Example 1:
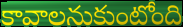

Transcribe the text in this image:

కావాలనుకుంటోంది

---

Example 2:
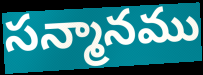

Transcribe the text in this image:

సన్మానము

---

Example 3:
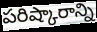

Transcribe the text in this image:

పరిష్కారాన్ని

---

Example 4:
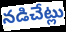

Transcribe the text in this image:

నడిచేట్లు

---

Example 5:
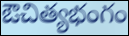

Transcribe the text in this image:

ఔచిత్యభంగం